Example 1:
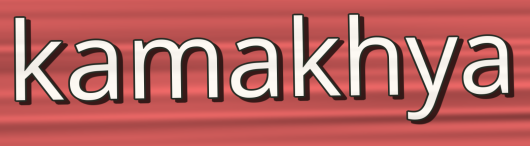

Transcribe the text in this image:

kamakhya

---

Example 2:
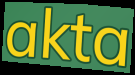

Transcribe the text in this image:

akta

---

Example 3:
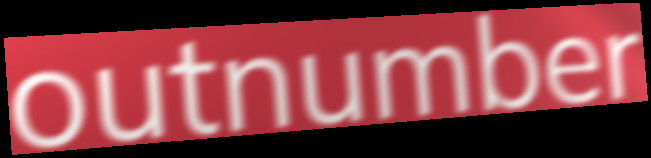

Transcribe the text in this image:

outnumber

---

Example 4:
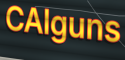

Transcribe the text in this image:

CAlguns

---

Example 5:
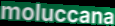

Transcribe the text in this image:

moluccana